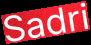
Sadri